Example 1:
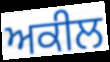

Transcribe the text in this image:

ਅਕੀਲ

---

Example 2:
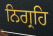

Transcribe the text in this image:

ਨਿਗ੍ਰਹਿ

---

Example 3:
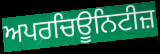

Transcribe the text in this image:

ਅਪਰਚਿਊਨਿਟੀਜ਼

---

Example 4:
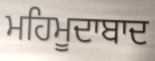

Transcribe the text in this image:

ਮਹਿਮੂਦਾਬਾਦ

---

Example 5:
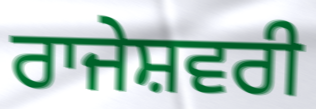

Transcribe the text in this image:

ਰਾਜੇਸ਼ਵਰੀ